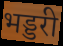
भड्डरी